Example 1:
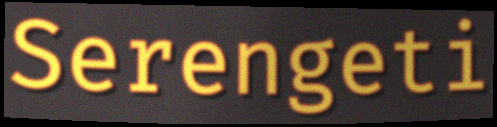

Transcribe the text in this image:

Serengeti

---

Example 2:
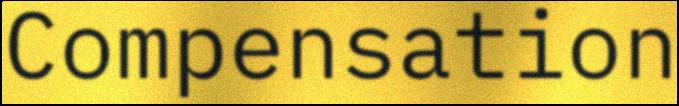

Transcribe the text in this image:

Compensation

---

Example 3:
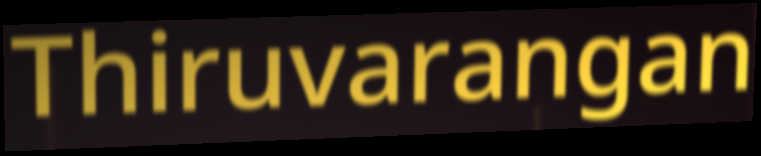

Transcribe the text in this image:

Thiruvarangan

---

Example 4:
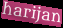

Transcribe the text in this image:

harijan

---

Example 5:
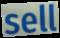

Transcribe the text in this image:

sell